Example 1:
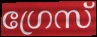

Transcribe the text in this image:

ഗ്രേസ്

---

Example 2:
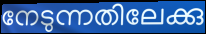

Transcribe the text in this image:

നേടുന്നതിലേക്കു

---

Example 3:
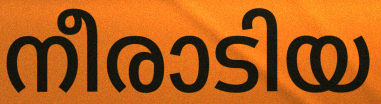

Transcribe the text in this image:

നീരാടിയ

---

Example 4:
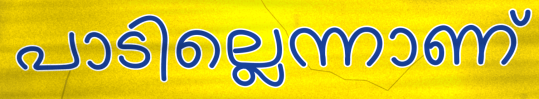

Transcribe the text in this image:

പാടില്ലെന്നാണ്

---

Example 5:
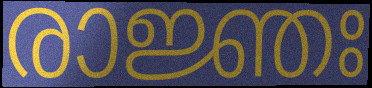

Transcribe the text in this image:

രാജ്ഞഃ